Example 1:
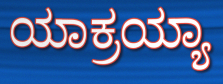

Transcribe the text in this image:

ಯಾಕ್ರಯ್ಯಾ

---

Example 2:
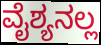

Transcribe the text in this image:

ವೈಶ್ಯನಲ್ಲ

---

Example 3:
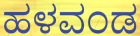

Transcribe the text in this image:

ಹಳವಂಡ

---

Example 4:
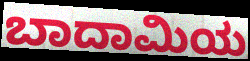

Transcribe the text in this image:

ಬಾದಾಮಿಯ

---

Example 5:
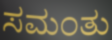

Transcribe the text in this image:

ಸಮಂತು